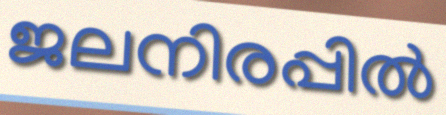
ജലനിരപ്പിൽ